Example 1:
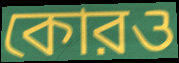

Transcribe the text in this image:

কোরও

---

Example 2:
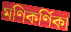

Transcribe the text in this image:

মণিকর্ণিকা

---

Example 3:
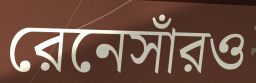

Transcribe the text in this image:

রেনেসাঁরও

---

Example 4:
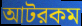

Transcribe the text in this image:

আটরকম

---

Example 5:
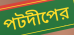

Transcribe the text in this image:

পটদীপের